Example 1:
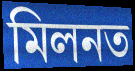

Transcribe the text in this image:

মিলনত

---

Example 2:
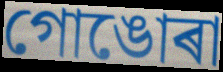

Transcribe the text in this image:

গোঙোৰা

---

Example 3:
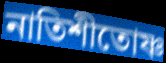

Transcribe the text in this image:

নাতিশীতোষ্ণ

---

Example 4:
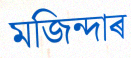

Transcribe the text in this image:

মজিন্দাৰ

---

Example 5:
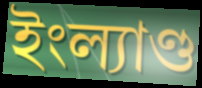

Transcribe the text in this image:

ইংল্যাণ্ড